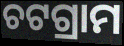
ଚଟଗ୍ରାମ